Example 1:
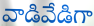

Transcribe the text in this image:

వాడివేడిగా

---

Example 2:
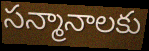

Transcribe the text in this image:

సన్మానాలకు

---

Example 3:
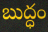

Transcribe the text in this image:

బుద్ధం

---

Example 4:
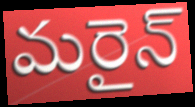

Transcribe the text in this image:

మరైన్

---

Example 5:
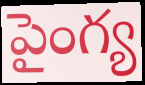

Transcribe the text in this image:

పైంగ్య